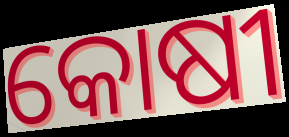
କୋଷୀ